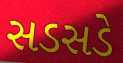
સડસડે